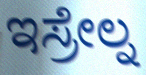
ಇಸ್ರೇಲ್ನ